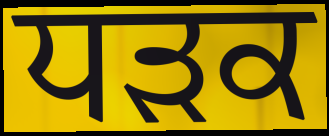
ਧਡ਼ਕ